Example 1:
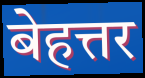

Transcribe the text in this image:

बेहत्तर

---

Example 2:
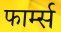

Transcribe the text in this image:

फार्म्स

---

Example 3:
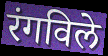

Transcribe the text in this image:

रंगविले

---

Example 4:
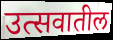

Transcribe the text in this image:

उत्सवातील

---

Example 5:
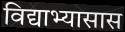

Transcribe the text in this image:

विद्याभ्यासास